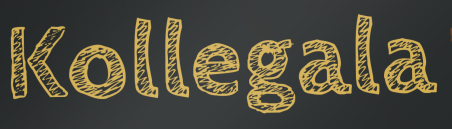
Kollegala